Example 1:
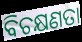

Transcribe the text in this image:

ବିଚକ୍ଷଣତା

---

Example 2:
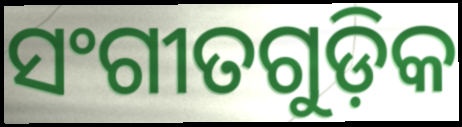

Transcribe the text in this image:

ସଂଗୀତଗୁଡ଼ିକ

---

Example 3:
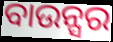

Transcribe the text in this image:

ବାଉନ୍ସର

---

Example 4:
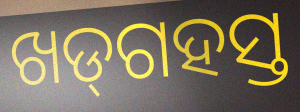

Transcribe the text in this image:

ଖଡ୍‌ଗହସ୍ତ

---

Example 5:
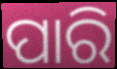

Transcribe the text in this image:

ପାରି